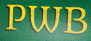
PWB